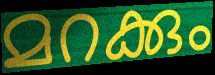
മറക്കും